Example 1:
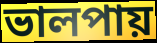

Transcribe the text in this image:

ভালপায়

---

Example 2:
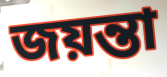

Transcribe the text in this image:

জয়ন্তা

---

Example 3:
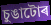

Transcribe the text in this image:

চুঙাটোৰ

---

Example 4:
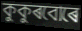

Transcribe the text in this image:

কুকুৰবোৰে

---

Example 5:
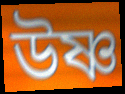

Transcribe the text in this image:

উষ্ণ